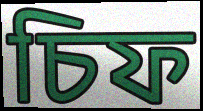
চিফ